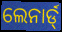
ଲେନାର୍ଡ୍